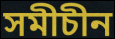
সমীচীন